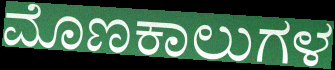
ಮೊಣಕಾಲುಗಳ